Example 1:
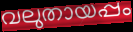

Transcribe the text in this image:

വലുതായപ്പം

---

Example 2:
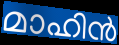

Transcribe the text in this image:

മാഹിൻ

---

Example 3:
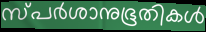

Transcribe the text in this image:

സ്പർശാനുഭൂതികൾ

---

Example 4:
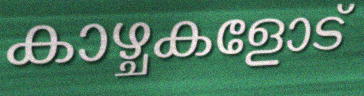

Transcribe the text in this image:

കാഴ്ചകളോട്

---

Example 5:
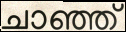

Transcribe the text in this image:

ചാഞ്ഞ്